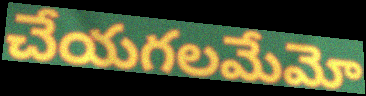
చేయగలమేమో